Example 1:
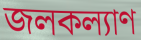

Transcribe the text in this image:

জলকল্যাণ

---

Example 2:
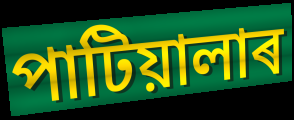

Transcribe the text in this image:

পাটিয়ালাৰ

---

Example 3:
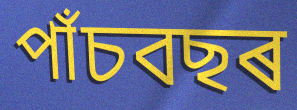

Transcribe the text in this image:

পাঁচবছৰ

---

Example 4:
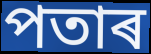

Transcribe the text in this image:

পতাৰ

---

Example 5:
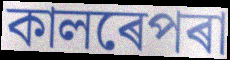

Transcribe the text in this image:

কালৰেপৰা